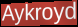
Aykroyd